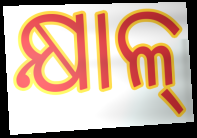
କ୍ଷାଳ୍